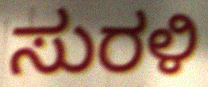
ಸುರಳಿ